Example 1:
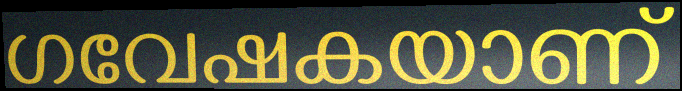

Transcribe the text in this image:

ഗവേഷകയാണ്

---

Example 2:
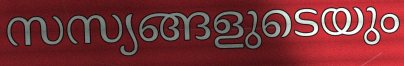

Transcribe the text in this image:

സസ്യങ്ങളുടെയും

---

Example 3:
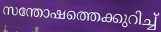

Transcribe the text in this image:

സന്തോഷത്തെക്കുറിച്ച്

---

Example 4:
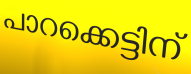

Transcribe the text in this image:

പാറക്കെട്ടിന്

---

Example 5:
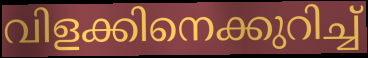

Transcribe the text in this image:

വിളക്കിനെക്കുറിച്ച്